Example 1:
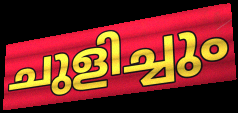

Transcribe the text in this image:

ചുളിച്ചും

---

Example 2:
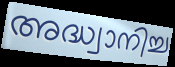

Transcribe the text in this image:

അദ്ധ്വാനിച്ച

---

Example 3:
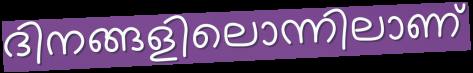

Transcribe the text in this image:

ദിനങ്ങളിലൊന്നിലാണ്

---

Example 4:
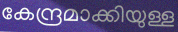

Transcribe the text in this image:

കേന്ദ്രമാക്കിയുള്ള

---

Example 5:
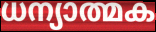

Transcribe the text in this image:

ധന്യാത്മക